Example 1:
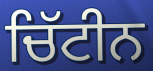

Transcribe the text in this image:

ਚਿੱਟੀਨ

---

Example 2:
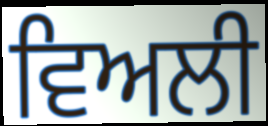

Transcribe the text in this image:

ਵਿਅਲੀ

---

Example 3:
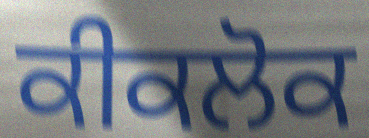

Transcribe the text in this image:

ਕੀਕਲੋਕ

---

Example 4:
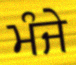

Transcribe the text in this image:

ਮੰਜੇ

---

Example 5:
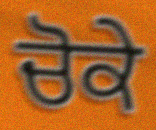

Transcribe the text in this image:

ਚੋਕੇ